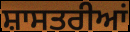
ਸ਼ਾਸਤਰੀਆਂ